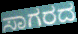
ಸಾಗರದ